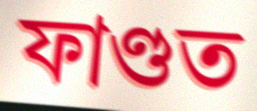
ফাণ্ডত